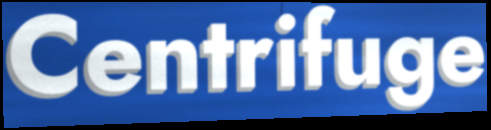
Centrifuge